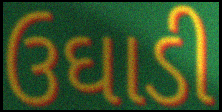
ઉઘાડી